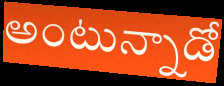
అంటున్నాడో